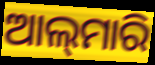
ଆଲ୍‌ମାରି